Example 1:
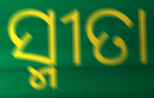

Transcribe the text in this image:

ସ୍ମୀତା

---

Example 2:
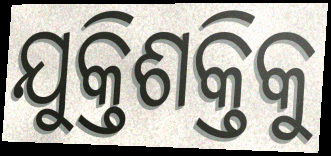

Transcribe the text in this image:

ଯୁକ୍ତିଶକ୍ତିକୁ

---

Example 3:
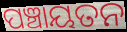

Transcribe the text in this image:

ପଞ୍ଚାୟତନ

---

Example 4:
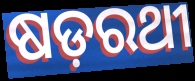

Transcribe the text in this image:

ଷଡ଼ରଥୀ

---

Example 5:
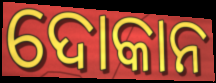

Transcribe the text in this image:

ଦୋକାନ